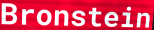
Bronstein